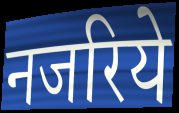
नजरिये